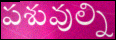
పశువుల్ని